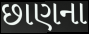
છાણના